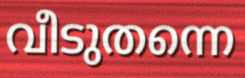
വീടുതന്നെ